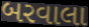
બરવાલા